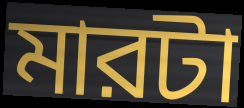
মারটা